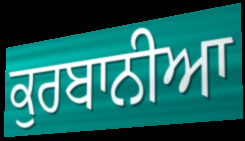
ਕੁਰਬਾਨੀਆ